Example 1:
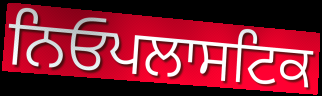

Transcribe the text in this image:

ਨਿਓਪਲਾਸਟਿਕ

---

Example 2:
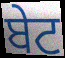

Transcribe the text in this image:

ਬੇਟ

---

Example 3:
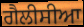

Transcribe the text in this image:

ਗੈਲੀਸੀਆ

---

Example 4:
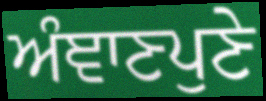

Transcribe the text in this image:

ਅੰਞਾਣਪੁਣੇ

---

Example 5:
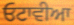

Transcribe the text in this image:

ਓਟਾਵੀਆ